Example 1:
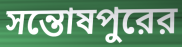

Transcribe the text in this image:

সন্তোষপুরের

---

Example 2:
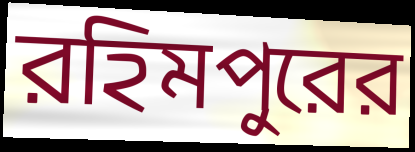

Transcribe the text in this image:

রহিমপুরের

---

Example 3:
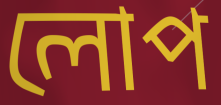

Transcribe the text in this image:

লোপ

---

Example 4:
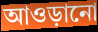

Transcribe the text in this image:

আওড়ানো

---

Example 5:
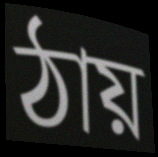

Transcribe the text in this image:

ঠায়